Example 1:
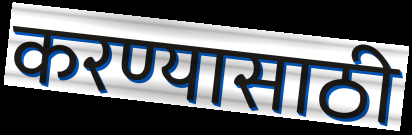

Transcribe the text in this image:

करण्यासाठी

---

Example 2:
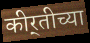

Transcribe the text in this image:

कीर्तीच्या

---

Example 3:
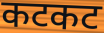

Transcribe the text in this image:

कटकट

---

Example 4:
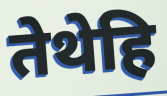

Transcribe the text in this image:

तेथेहि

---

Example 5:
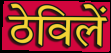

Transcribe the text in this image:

ठेविलें